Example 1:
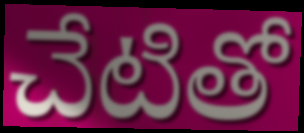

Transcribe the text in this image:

చేటితో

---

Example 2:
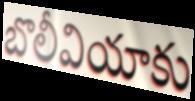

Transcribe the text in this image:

బొలీవియాకు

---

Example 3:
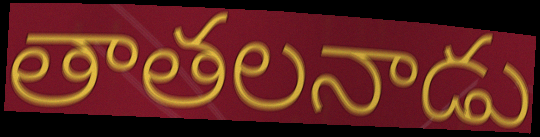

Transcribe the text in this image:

తాతలనాడు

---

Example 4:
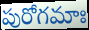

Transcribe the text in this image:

పురోగమాః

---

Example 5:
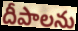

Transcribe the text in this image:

దీపాలను